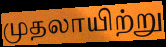
முதலாயிற்று